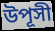
উপূসী